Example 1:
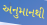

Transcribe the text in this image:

અનુમાનથી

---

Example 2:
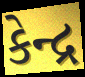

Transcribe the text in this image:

કેન્દ્ર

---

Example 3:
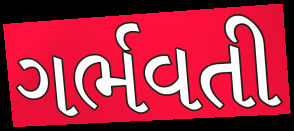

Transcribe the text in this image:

ગર્ભવતી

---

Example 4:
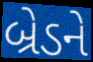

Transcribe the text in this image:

બ્રેડને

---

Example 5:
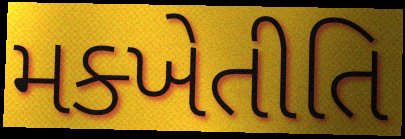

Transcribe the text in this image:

મક્ખેતીતિ